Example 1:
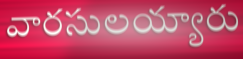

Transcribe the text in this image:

వారసులయ్యారు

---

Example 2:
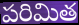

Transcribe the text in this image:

పరిమిత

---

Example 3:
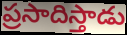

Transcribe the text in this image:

ప్రసాదిస్తాడు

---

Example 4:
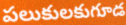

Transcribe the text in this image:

పలుకులకుగూడ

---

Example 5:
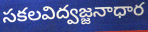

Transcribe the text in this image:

సకలవిద్వజ్జనాధార